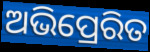
ଅଭିପ୍ରେରିତ